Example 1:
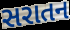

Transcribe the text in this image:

સરાતન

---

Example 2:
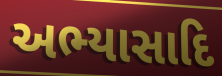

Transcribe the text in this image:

અભ્યાસાદિ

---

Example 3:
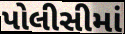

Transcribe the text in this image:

પોલીસીમાં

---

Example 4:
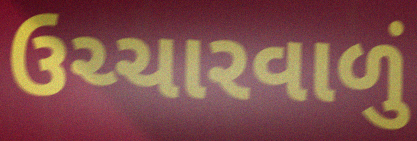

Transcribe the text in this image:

ઉચ્ચારવાળું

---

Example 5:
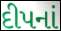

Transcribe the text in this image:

દીપનાં